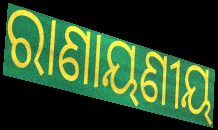
ରାଣାୟଣୀୟ